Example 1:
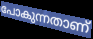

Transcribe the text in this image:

പോകുന്നതാണ്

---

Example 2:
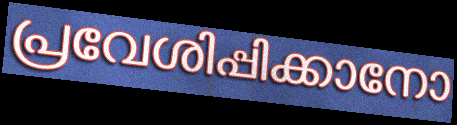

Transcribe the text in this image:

പ്രവേശിപ്പിക്കാനോ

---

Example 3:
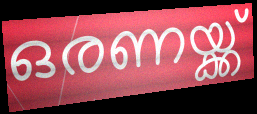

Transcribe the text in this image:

ഒരണയ്ക്ക്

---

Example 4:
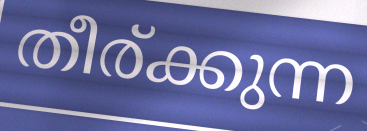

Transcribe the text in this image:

തീര്ക്കുന്ന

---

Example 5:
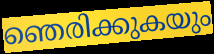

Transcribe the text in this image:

ഞെരിക്കുകയും